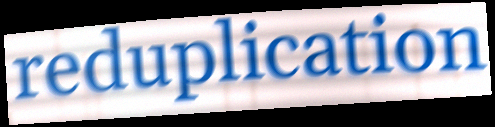
reduplication